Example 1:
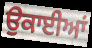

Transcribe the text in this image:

ਉਕਾਈਆਂ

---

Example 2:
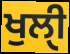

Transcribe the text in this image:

ਖੁਲੀੑ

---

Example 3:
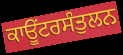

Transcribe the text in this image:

ਕਾਊਂਟਰਸੰਤੁਲਨ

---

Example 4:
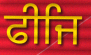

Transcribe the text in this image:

ਫੀਜਿ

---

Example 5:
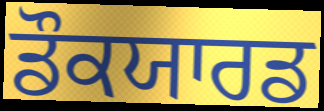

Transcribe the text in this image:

ਡੌਕਯਾਰਡ